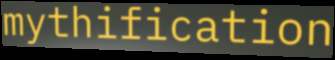
mythification